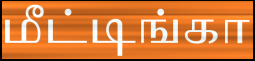
மீட்டிங்கா